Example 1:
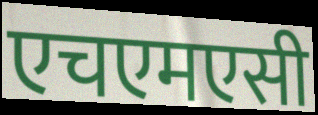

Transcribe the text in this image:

एचएमएसी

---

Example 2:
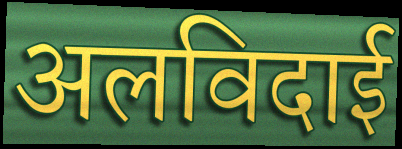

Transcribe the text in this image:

अलविदाई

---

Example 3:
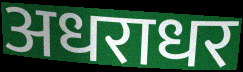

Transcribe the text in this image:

अधराधर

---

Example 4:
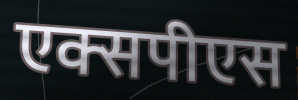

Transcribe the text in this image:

एक्सपीएस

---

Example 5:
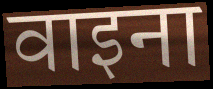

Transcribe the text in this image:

वाइना